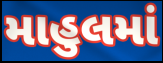
માહુલમાં